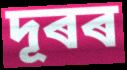
দূৰৰ